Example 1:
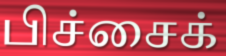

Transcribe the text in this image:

பிச்சைக்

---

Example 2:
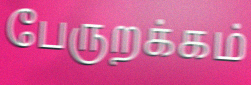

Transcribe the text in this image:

பேருறக்கம்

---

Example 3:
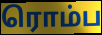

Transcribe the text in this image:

ரொம்ப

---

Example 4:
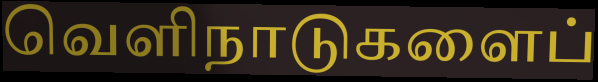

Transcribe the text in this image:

வெளிநாடுகளைப்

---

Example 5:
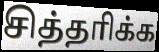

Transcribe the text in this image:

சித்தரிக்க